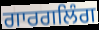
ਗਾਰਗਲਿੰਗ